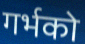
गर्भको